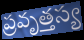
ప్రవృత్తస్య